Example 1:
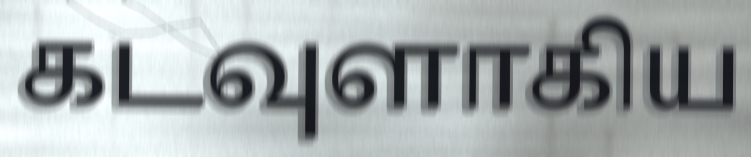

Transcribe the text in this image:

கடவுளாகிய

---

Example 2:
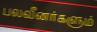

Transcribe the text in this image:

பலவீனர்களும்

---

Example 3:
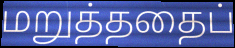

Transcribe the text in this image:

மறுத்ததைப்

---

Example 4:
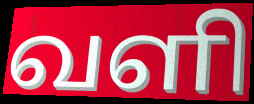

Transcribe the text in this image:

வளி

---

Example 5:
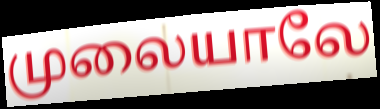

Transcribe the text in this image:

முலையாலே